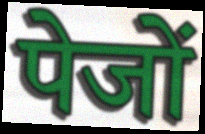
पेजों